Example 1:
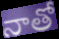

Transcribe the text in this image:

నాతో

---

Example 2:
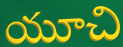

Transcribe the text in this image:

యూచి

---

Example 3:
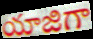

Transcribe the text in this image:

యాజిగా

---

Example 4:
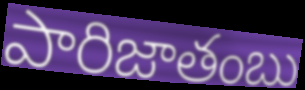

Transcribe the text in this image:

పారిజాతంబు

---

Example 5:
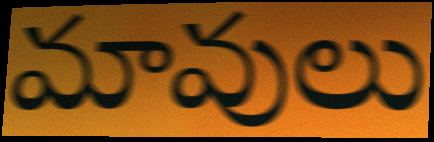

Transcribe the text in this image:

మావులు